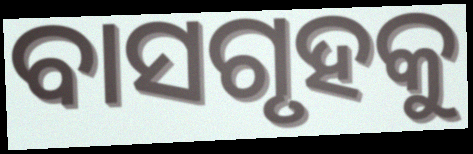
ବାସଗୃହକୁ